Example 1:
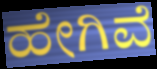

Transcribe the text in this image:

ಹೇಗಿವೆ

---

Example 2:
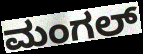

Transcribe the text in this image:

ಮಂಗಲ್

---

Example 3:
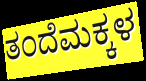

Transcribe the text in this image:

ತಂದೆಮಕ್ಕಳ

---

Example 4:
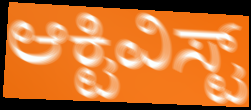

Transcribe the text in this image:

ಆಕ್ಟಿವಿಸ್ಟ್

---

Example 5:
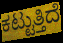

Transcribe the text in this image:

ಕಟ್ಟುತ್ತಿದೆ